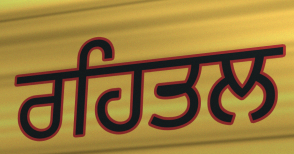
ਰਹਿਤਲ